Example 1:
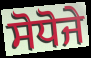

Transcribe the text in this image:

ਸੋਧੋਜੇ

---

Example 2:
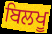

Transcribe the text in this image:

ਬਿਲਖੂ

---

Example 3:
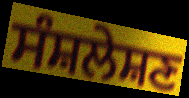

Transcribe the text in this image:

ਸੰਸ਼ਲੇਸ਼ਣ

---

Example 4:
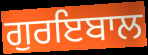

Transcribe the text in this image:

ਗੁਰਇਬਾਲ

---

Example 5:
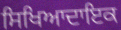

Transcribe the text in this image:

ਸਿਖਿਆਦਾਇਕ